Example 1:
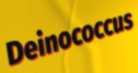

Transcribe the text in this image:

Deinococcus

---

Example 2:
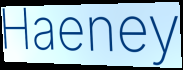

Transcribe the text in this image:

Haeney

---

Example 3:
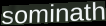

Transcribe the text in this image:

sominath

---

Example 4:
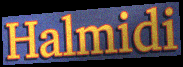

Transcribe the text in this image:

Halmidi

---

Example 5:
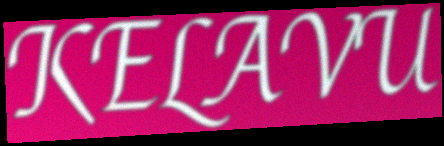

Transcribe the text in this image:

KELAVU